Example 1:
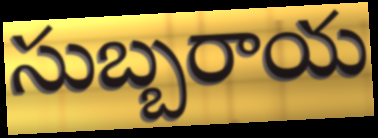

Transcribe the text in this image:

సుబ్బరాయ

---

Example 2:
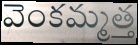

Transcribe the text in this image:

వెంకమ్మత్త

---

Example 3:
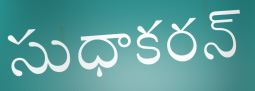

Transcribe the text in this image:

సుధాకరన్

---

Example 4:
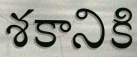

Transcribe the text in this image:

శకానికి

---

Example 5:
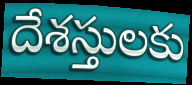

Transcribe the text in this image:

దేశస్తులకు